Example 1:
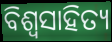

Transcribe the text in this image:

ବିଶ୍ଵସାହିତ୍ୟ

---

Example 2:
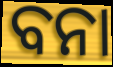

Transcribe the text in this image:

ବନା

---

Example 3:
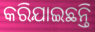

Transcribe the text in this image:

କରିଯାଇଛନ୍ତି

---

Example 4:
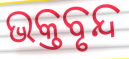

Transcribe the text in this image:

ଭକ୍ତବୃନ୍ଦ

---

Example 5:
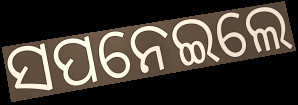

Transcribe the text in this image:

ସପନେଇଲେ